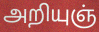
அறியுஞ்